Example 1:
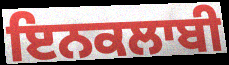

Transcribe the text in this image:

ਇਨਕਲਾਬੀ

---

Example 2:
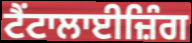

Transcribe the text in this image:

ਟੈਂਟਾਲਾਈਜ਼ਿੰਗ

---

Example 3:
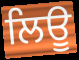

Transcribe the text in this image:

ਲਿਊ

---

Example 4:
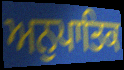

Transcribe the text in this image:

ਅਨੁਪਾਤਿਕ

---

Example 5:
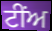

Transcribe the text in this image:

ਟੀਂਅ